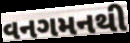
વનગમનથી